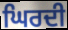
ਘਿਰਦੀ